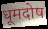
धूमदोष